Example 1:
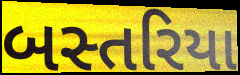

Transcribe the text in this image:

બસ્તરિયા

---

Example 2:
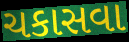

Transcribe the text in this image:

ચકાસવા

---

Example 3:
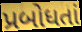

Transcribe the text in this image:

પ્રબોધતાં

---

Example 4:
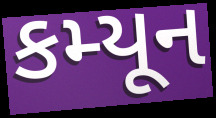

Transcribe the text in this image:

કમ્યૂન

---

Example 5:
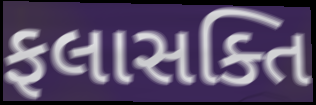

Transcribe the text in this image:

ફલાસક્તિ